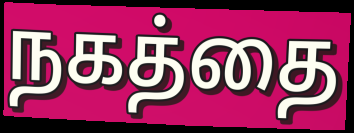
நகத்தை